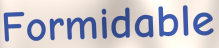
Formidable